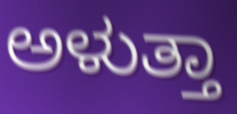
ಅಳುತ್ತಾ